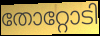
തോറ്റോടി